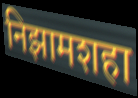
निझामशहा